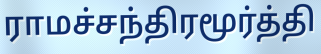
ராமச்சந்திரமூர்த்தி